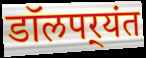
डॉलपर्यंत